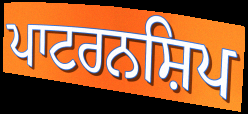
ਪਾਟਰਨਸ਼ਿਪ